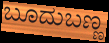
ಬೂದುಬಣ್ಣ